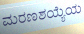
ಮರಣಶಯ್ಯೆಯ